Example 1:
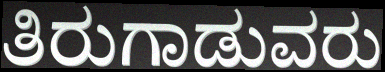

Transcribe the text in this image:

ತಿರುಗಾಡುವರು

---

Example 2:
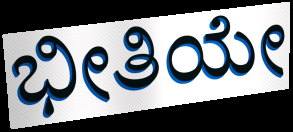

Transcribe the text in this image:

ಭೀತಿಯೇ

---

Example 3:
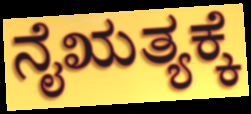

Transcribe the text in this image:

ನೈಋತ್ಯಕ್ಕೆ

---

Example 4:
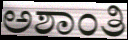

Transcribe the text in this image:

ಅಶಾಂತಿ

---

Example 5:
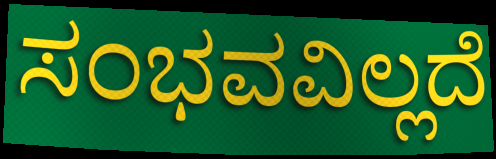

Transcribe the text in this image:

ಸಂಭವವಿಲ್ಲದೆ